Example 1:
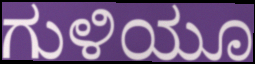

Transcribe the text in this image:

ಗುಳಿಯೂ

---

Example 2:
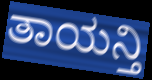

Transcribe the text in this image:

ತಾಯನ್ತಿ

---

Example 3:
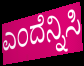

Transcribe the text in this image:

ಎಂದೆನ್ನಿಸಿ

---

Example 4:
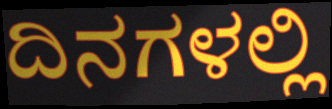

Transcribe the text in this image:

ದಿನಗಳಲ್ಲಿ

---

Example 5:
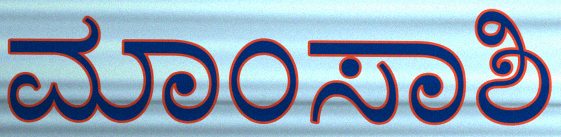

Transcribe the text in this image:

ಮಾಂಸಾಶಿ